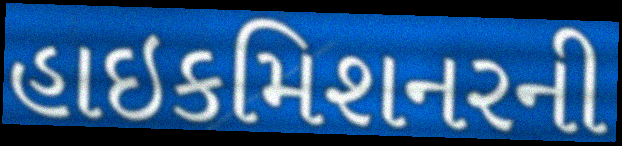
હાઇકમિશનરની